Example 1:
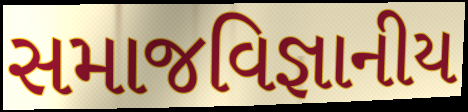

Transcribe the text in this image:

સમાજવિજ્ઞાનીય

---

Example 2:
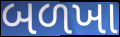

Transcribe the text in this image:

બળખા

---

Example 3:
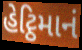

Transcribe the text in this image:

હેટ્ઠિમાનં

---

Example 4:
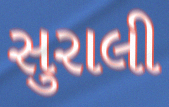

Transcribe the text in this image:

સુરાલી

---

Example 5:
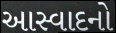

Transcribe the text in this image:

આસ્વાદનો